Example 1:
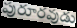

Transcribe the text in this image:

పురూరవుడు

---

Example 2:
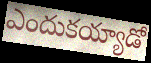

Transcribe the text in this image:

ఎందుకయ్యాడో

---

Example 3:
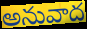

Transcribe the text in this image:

అనువాద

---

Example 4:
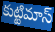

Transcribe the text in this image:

కుట్టిమాస్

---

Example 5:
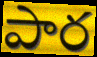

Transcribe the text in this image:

పార